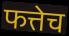
फत्तेच